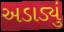
અડાડ્યું